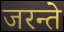
जरन्ते